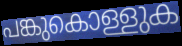
പങ്കുകൊള്ളുക